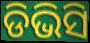
ଡିଭିସି